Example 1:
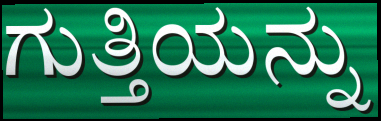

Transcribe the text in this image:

ಗುತ್ತಿಯನ್ನು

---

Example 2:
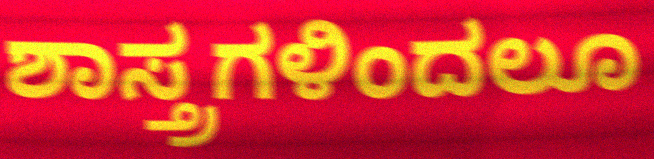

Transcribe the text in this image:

ಶಾಸ್ತ್ರಗಳಿಂದಲೂ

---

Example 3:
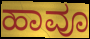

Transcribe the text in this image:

ಹಾವೂ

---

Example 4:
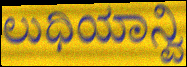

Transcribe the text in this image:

ಲುಧಿಯಾನ್ವಿ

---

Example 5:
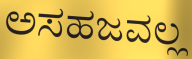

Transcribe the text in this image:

ಅಸಹಜವಲ್ಲ